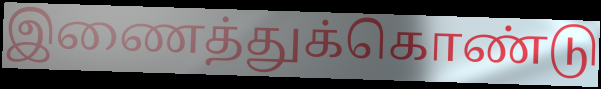
இணைத்துக்கொண்டு